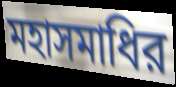
মহাসমাধির